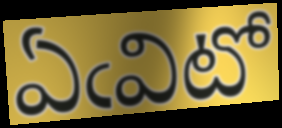
ఏఁవిటో